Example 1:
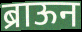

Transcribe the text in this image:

ब्राऊन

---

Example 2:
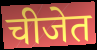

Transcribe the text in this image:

चीजेत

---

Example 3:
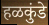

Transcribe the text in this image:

हळकुंडे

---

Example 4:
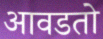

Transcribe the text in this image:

आवडतो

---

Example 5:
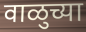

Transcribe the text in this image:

वाळुच्या